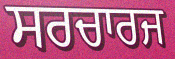
ਸਰਚਾਰਜ